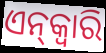
ଏନ୍‌କ୍ୱାରି